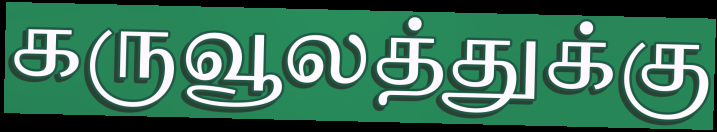
கருவூலத்துக்கு